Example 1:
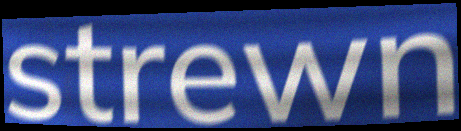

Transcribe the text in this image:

strewn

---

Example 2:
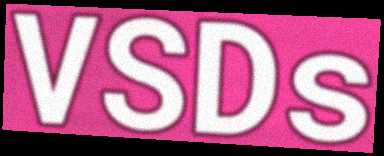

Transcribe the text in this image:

VSDs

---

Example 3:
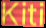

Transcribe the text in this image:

Kiti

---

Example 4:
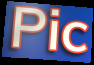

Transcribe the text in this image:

Pic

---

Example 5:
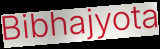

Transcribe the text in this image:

Bibhajyota